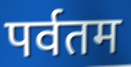
पर्वतम